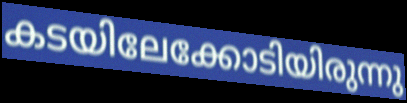
കടയിലേക്കോടിയിരുന്നു